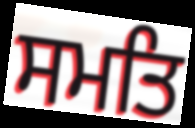
ਸਮਤਿ